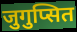
जुगुप्सित